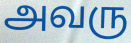
அவரு